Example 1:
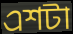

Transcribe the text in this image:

এশটা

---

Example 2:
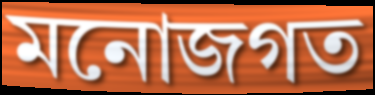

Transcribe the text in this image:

মনোজগত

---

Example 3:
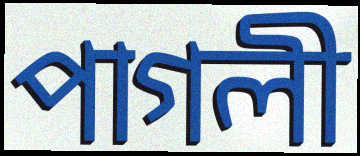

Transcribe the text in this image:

পাগলী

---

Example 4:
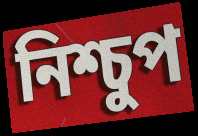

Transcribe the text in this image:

নিশ্চুপ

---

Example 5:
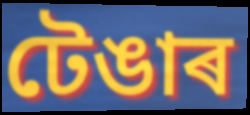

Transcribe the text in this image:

টেঙাৰ